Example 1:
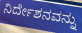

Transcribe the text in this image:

ನಿರ್ದೇಶನವನ್ನು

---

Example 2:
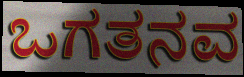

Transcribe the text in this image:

ಒಗತನವ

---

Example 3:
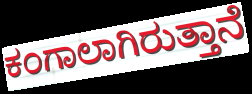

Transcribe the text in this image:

ಕಂಗಾಲಾಗಿರುತ್ತಾನೆ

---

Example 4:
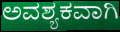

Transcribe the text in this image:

ಅವಶ್ಯಕವಾಗಿ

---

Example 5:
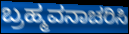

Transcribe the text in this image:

ಬ್ರಹ್ಮವನಾಚರಿಸಿ